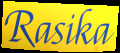
Rasika